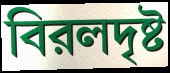
বিরলদৃষ্ট